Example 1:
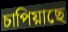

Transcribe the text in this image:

চাপিয়াছে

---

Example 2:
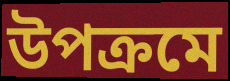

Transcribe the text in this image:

উপক্রমে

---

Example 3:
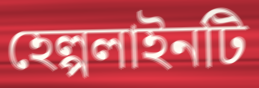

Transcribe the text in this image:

হেল্পলাইনটি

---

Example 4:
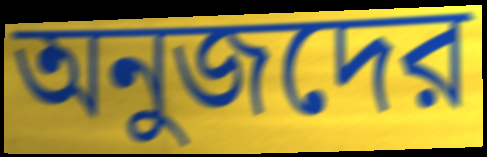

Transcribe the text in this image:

অনুজদের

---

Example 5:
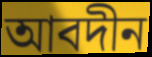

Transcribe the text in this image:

আবদীন